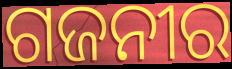
ଗଜନୀର